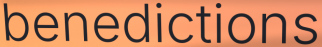
benedictions